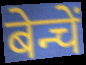
बेन्चें